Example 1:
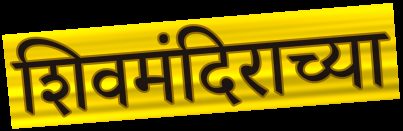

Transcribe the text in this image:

शिवमंदिराच्या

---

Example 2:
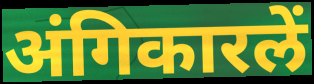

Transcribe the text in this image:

अंगिकारलें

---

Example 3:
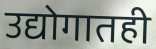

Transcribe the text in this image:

उद्योगातही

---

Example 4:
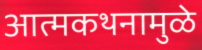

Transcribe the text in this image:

आत्मकथनामुळे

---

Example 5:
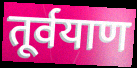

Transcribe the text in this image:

तूर्वयाण